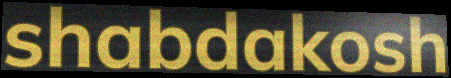
shabdakosh